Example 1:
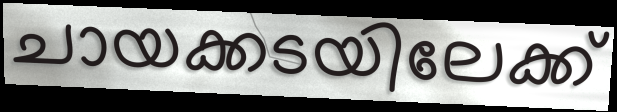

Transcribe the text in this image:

ചായക്കടയിലേക്ക്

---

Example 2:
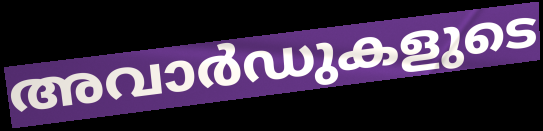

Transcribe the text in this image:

അവാർഡുകളുടെ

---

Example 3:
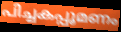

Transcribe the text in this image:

പിച്ചകപ്പൂമണം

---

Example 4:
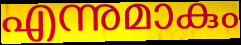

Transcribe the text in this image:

എന്നുമാകും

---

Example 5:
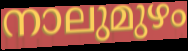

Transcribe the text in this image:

നാലുമുഴം